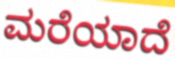
ಮರೆಯಾದೆ